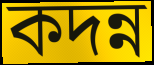
কদন্ন